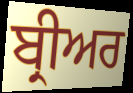
ਬ੍ਰੀਅਰ